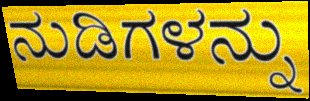
ನುಡಿಗಳನ್ನು